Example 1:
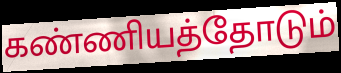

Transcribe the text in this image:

கண்ணியத்தோடும்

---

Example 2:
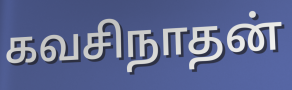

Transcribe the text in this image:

கவசிநாதன்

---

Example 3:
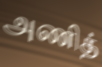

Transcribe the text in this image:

அணித்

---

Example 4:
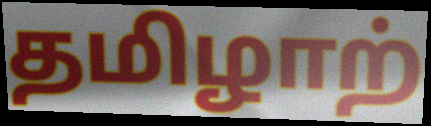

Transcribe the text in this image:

தமிழாற்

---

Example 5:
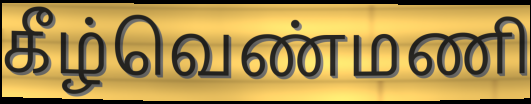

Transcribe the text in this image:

கீழ்வெண்மணி